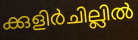
ക്കുളിർചില്ലിൽ